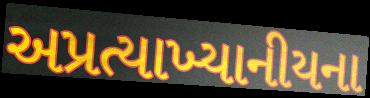
અપ્રત્યાખ્યાનીયના